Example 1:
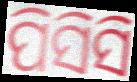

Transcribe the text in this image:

ପିସିସି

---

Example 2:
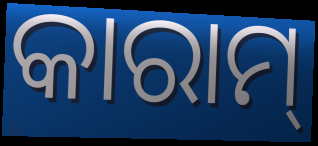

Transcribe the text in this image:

କାରାମ୍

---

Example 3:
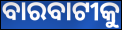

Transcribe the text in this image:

ବାରବାଟୀକୁ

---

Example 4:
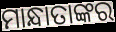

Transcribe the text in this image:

ମାନ୍ଧାତାଙ୍କର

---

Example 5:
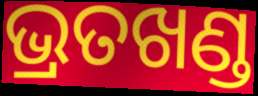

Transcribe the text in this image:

ଭ୍ରତଖଣ୍ଡ